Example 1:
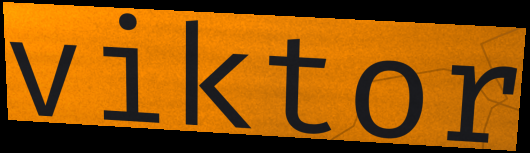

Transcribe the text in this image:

viktor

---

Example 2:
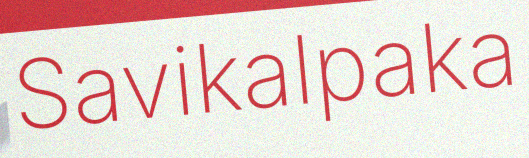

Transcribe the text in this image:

Savikalpaka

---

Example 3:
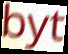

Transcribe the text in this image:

byt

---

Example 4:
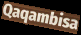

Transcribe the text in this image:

Qaqambisa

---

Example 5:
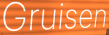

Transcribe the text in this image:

Gruisen